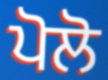
ਪੋਲੋ